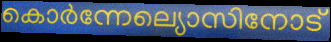
കൊർന്നേല്യൊസിനോട്